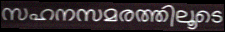
സഹനസമരത്തിലൂടെ